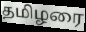
தமிழரை